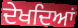
ਦੇਖਦਿਆਂ